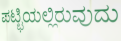
ಪಟ್ಟಿಯಲ್ಲಿರುವುದು